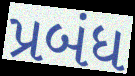
પ્રબંધ